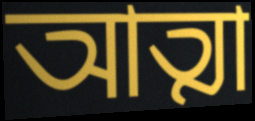
আত্মা